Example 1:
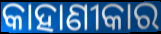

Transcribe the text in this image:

କାହାଣୀକାର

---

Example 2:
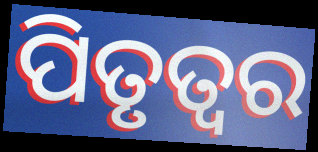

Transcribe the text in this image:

ପିତୃତ୍ୱର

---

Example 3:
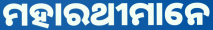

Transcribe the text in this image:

ମହାରଥୀମାନେ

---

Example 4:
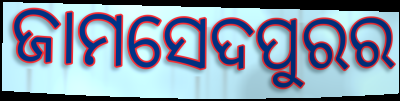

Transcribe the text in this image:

ଜାମସେଦପୁରର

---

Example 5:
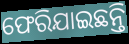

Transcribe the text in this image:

ଫେରିଯାଇଛନ୍ତି